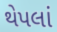
થેપલાં